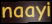
naayi